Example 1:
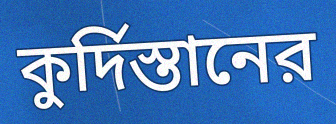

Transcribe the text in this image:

কুর্দিস্তানের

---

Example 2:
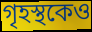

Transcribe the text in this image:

গৃহস্থকেও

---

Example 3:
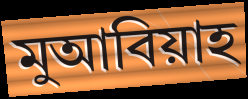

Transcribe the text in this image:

মুআবিয়াহ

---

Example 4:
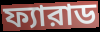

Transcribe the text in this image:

ফ্যারাড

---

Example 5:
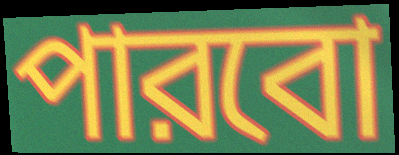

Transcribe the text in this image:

পারবো